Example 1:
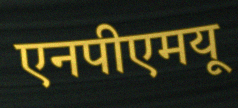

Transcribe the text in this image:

एनपीएमयू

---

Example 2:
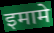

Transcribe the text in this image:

इमामे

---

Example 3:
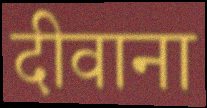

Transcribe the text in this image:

दीवाना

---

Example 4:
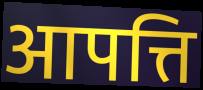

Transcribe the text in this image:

आपत्ति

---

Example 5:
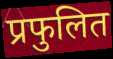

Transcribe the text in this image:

प्रफुलित